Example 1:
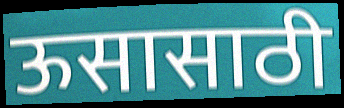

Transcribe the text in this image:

ऊसासाठी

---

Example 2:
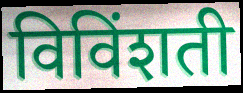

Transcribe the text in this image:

विविंशती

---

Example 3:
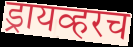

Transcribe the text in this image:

ड्रायव्हरच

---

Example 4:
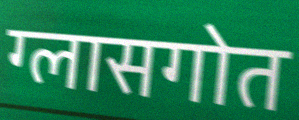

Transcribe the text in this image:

ग्लासगोत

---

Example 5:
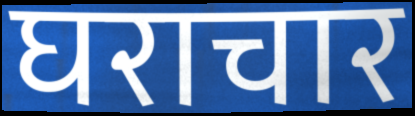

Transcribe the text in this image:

घराचार